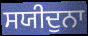
ਸਯੀਦੁਨਾ